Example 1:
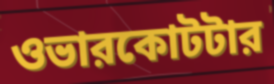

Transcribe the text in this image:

ওভারকোটটার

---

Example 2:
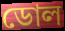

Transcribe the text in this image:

ডোল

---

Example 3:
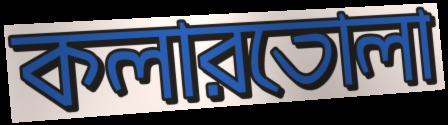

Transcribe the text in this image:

কলারতোলা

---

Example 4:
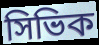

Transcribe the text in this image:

সিভিক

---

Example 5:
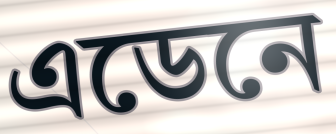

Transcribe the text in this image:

এডেনে